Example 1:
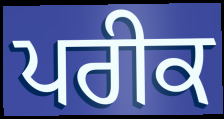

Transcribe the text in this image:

ਪਰੀਕ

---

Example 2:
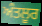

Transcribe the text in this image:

ਅੰਤਲੂਰ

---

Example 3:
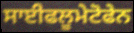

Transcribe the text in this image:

ਸਾਈਫਲੂਮੇਟੋਫੇਨ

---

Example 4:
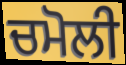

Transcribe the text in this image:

ਚਮੋਲੀ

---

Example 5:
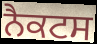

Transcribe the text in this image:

ਨੈਕਟਸ